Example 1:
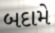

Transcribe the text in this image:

બદામે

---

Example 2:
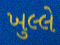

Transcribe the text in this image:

ખુલ્લે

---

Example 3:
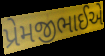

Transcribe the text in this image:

પ્રેમજીભાઈએ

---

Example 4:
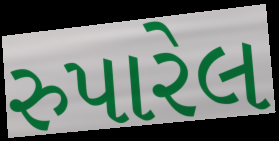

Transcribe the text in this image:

રુપારેલ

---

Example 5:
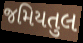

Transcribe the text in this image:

જમિયતુલ